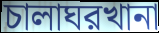
চালাঘরখানা